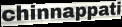
chinnappati